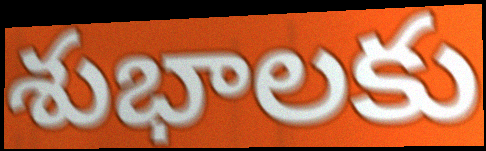
శుభాలకు